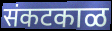
संकटकाळ